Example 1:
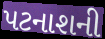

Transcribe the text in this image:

પટનાશની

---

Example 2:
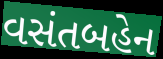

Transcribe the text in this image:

વસંતબહેન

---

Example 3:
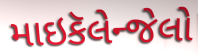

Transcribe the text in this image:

માઇકૅલેન્જેલો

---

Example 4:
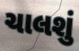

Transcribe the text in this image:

ચાલશું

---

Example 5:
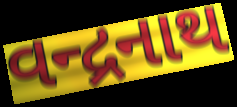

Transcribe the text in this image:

વન્દ્રનાથ